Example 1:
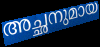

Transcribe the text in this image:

അച്ഛനുമായ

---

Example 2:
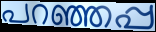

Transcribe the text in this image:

പറഞ്ഞപ്പ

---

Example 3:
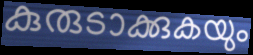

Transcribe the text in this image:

കുരുടാക്കുകയും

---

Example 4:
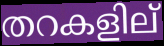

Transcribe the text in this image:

തറകളില്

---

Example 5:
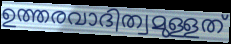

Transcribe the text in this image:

ഉത്തരവാദിത്വമുള്ളത്